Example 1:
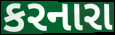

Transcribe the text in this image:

કરનારા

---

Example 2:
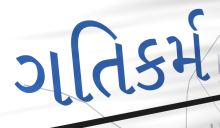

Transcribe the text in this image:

ગતિકર્મ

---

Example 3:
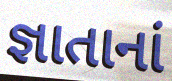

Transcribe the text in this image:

જ્ઞાતાનાં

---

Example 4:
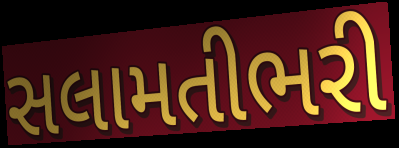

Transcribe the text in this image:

સલામતીભરી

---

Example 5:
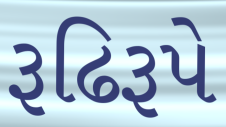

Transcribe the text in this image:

રૂઢિરૂપે